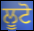
ਲੂਟੋ